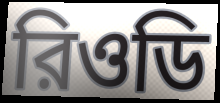
রিওডি